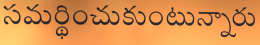
సమర్థించుకుంటున్నారు